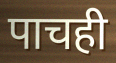
पाचही